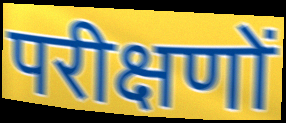
परीक्षणों